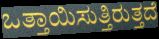
ಒತ್ತಾಯಿಸುತ್ತಿರುತ್ತದೆ